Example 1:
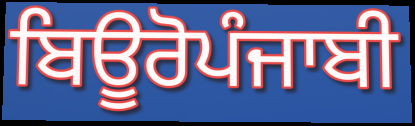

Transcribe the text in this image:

ਬਿਊਰੋਪੰਜਾਬੀ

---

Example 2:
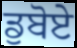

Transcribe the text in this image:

ਡੁਬੋਏ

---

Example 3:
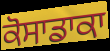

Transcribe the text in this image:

ਕੋਸਾਡਾਕਾ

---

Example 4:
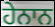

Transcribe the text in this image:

ਹੇਨਾਨ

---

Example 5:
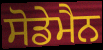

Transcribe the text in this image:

ਸੋਡੇਮੈਨ